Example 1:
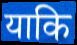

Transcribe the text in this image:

याकि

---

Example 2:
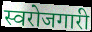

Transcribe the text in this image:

स्वरोजगारी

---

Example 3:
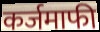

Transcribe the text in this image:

कर्जमाफी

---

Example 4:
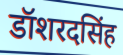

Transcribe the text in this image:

डॉशरदसिंह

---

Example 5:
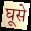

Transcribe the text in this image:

घूसे